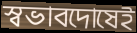
স্বভাবদোষেই